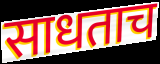
साधताच